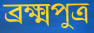
ব্ৰক্ষ্মপুত্ৰ